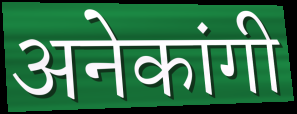
अनेकांगी